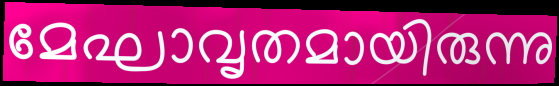
മേഘാവൃതമായിരുന്നു